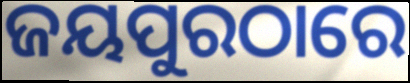
ଜୟପୁରଠାରେ